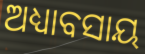
ଅଧ୍ୟାବସାୟ